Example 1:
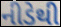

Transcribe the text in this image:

નીડેથી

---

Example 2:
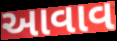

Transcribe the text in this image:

આવાવ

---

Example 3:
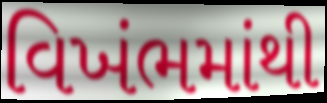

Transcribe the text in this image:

વિખંભમાંથી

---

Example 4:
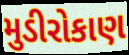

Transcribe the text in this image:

મુડીરોકાણ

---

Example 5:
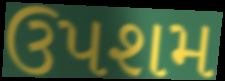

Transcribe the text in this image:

ઉપશમ